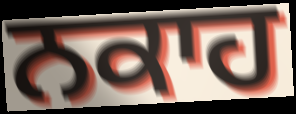
ਨਕਾਹ